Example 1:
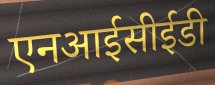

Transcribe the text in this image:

एनआईसीईडी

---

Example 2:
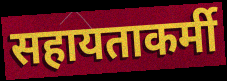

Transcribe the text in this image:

सहायताकर्मी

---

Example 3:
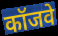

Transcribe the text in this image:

कॉजवे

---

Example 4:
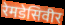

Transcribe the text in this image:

रेमडेसिवीर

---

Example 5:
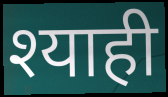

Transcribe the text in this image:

श्याही